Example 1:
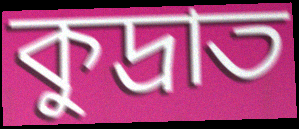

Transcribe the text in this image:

কুদ্রাত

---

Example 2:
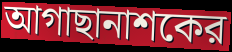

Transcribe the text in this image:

আগাছানাশকের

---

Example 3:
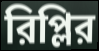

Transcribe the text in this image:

রিপ্লির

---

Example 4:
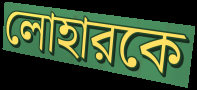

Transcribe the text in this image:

লোহারকে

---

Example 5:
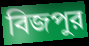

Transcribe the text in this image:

বিজপুর